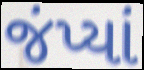
જંપ્યાં